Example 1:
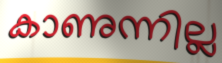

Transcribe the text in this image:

കാണുന്നില്ല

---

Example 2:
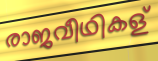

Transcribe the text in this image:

രാജവീഥികള്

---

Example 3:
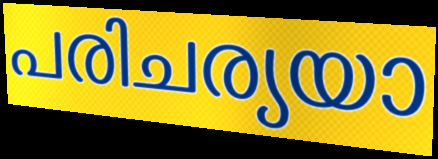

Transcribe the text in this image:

പരിചര്യയാ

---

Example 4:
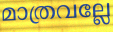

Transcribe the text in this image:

മാത്രവല്ലേ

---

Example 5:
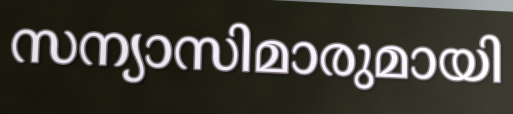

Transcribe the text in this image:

സന്യാസിമാരുമായി